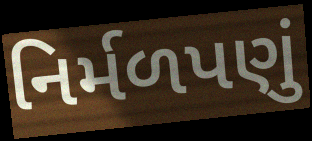
નિર્મળપણું